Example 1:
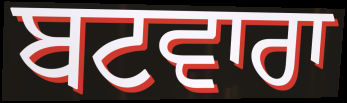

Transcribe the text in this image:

ਬਟਵਾਰਾ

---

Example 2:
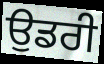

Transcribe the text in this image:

ਉਡਰੀ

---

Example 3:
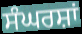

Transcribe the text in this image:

ਸੰਘਰਸ਼ਾਂ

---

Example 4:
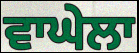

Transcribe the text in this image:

ਵਾਘੇਲਾ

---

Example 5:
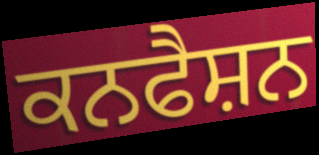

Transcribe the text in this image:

ਕਨਫੈਸ਼ਨ